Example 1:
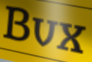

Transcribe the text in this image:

Bux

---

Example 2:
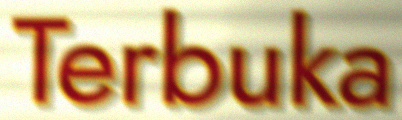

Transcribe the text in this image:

Terbuka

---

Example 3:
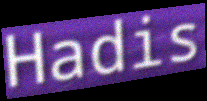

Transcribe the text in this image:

Hadis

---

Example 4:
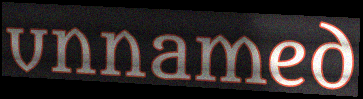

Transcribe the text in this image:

unnamed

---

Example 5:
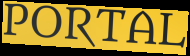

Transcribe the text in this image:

PORTAL